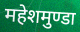
महेशमुण्डा